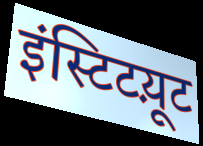
इंस्टिटय़ूट